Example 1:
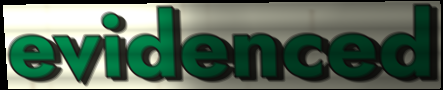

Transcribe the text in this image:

evidenced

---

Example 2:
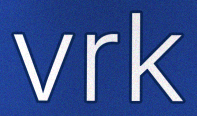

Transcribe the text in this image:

vrk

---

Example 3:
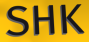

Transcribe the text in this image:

SHK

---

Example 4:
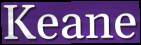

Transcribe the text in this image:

Keane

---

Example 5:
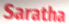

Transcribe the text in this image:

Saratha